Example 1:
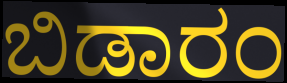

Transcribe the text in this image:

ಬಿಡಾರಂ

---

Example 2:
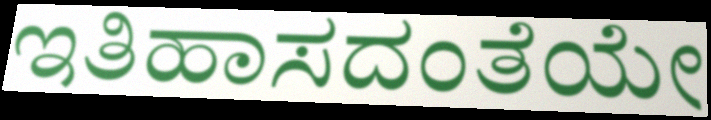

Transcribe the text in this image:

ಇತಿಹಾಸದಂತೆಯೇ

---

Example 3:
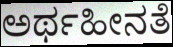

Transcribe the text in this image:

ಅರ್ಥಹೀನತೆ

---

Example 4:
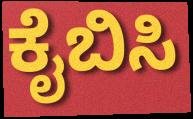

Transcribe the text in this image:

ಕೈಬಿಸಿ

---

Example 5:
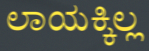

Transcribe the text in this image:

ಲಾಯಕ್ಕಿಲ್ಲ